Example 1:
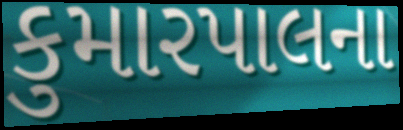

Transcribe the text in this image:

કુમારપાલના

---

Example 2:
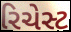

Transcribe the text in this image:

રિચેસ્ટ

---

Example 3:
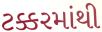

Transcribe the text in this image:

ટક્કરમાંથી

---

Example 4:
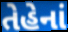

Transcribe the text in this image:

તેહેનાં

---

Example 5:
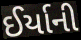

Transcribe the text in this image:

ઈર્યાની